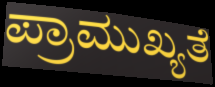
ಪ್ರಾಮುಖ್ಯತೆ